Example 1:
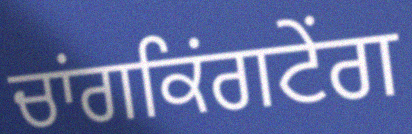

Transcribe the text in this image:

ਚਾਂਗਕਿਂਗਟੇਂਗ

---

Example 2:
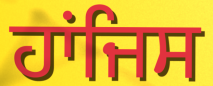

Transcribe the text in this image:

ਹਾਂਜਿਸ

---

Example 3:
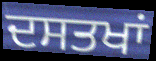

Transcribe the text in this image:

ਦਸਤਖਾਂ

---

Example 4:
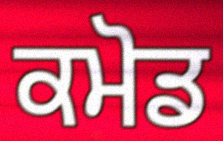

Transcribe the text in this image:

ਕਮੋਡ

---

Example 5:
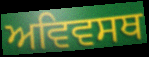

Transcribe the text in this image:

ਅਵਿਵਸਥ